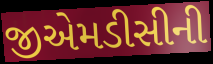
જીએમડીસીની